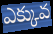
ఎక్కువ